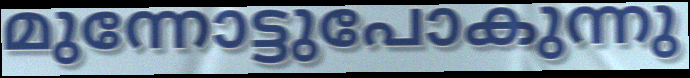
മുന്നോട്ടുപോകുന്നു